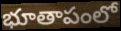
భూతాపంలో